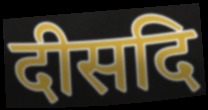
दीसदि